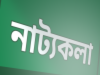
নাট্যকলা